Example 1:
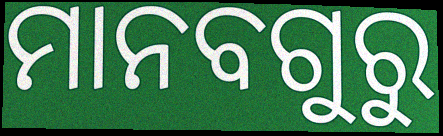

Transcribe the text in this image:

ମାନବଗୁରୁ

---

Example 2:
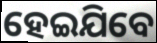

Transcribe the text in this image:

ହେଇଯିବେ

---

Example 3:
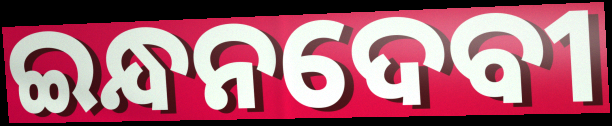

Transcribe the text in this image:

ଇନ୍ଧନଦେବୀ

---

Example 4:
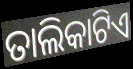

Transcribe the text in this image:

ତାଲିକାଟିଏ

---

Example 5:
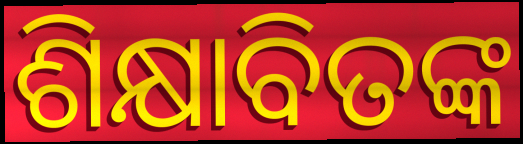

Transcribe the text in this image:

ଶିକ୍ଷାବିତଙ୍କ